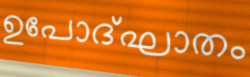
ഉപോദ്ഘാതം